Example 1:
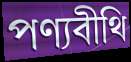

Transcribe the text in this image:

পণ্যবীথি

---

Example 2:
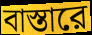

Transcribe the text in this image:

বাস্তারে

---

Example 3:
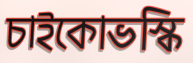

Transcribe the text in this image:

চাইকোভস্কি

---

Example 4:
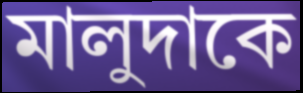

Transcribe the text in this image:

মালুদাকে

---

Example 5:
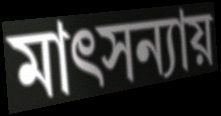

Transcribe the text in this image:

মাৎসন্যায়